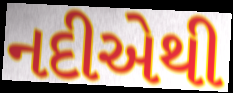
નદીએથી